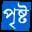
পৃষ্ট